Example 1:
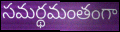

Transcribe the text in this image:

సమర్థమంతంగా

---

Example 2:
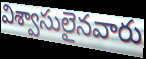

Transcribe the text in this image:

విశ్వాసులైనవారు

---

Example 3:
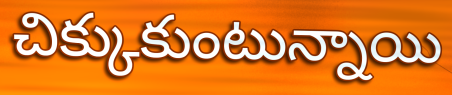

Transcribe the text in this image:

చిక్కుకుంటున్నాయి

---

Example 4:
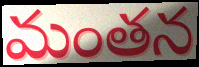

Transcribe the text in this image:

మంతన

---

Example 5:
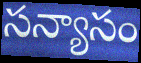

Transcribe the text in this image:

సన్యాసం